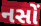
નસોં